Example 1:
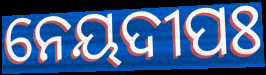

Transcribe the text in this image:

ନେୟଦୀପଃ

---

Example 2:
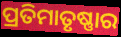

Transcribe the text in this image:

ପ୍ରତିମାତୃଷ୍ଣାର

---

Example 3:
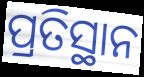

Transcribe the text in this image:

ପ୍ରତିସ୍ଥାନ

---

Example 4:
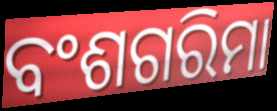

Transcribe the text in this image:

ବଂଶଗରିମା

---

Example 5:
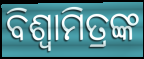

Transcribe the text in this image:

ବିଶ୍ବାମିତ୍ରଙ୍କ